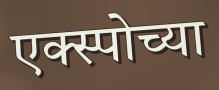
एक्स्पोच्या